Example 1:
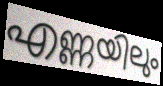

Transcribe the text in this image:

എണ്ണയിലും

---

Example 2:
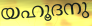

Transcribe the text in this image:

യഹൂദനു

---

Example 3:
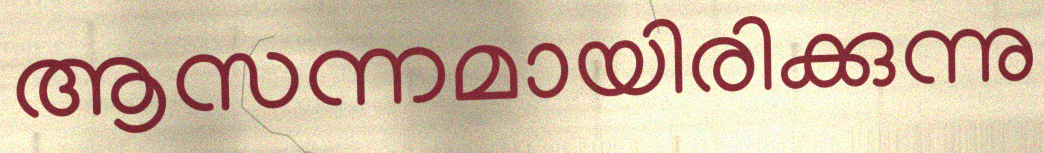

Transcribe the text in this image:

ആസന്നമായിരിക്കുന്നു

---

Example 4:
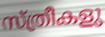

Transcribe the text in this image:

സ്ത്രീകളു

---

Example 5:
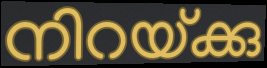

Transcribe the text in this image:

നിറയ്‌ക്കു